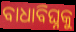
ବାଧାବିଘ୍ନକୁ